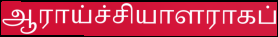
ஆராய்ச்சியாளராகப்